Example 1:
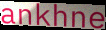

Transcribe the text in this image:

ankhne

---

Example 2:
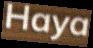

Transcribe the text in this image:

Haya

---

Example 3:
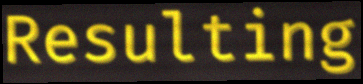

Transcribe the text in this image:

Resulting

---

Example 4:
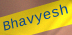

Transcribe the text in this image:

Bhavyesh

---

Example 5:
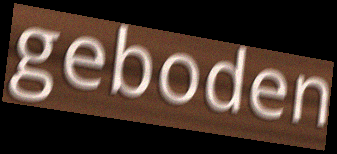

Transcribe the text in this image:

geboden